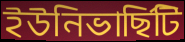
ইউনিভাৰ্ছিটি